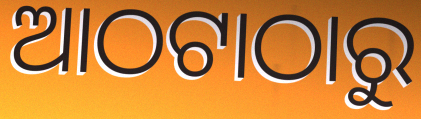
ଆଠଟାଠାରୁ